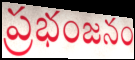
ప్రభంజనం